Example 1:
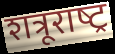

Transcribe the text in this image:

शत्रूराष्ट्र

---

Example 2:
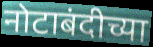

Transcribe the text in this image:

नोटाबंदीच्या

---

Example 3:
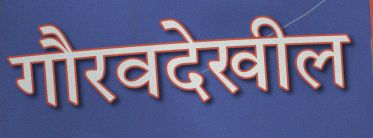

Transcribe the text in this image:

गौरवदेखील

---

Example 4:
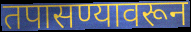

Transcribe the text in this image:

तपासण्यावरून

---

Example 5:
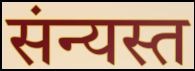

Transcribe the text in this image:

संन्यस्त